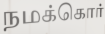
நமக்கொர்